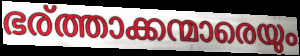
ഭര്ത്താക്കന്മാരെയും